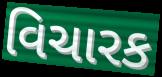
વિચારક